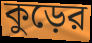
কুড়ের